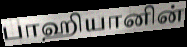
பாஹியானின்